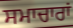
ਸਮਾਚਾਰਾਂ